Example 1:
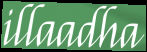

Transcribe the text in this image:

illaadha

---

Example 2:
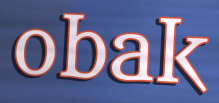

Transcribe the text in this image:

obak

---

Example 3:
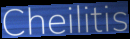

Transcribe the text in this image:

Cheilitis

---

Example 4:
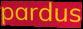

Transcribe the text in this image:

pardus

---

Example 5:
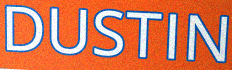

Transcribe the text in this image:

DUSTIN